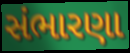
સંભારણા